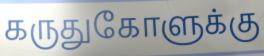
கருதுகோளுக்கு